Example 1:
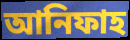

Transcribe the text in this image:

আনিফাহ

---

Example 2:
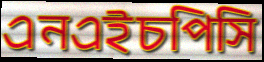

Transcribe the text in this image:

এনএইচপিসি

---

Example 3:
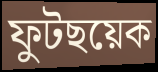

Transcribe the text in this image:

ফুটছয়েক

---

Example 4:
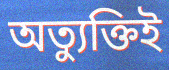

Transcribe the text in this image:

অত্যুক্তিই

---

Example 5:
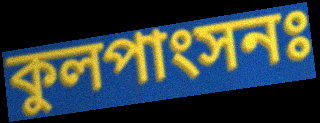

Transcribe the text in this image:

কুলপাংসনঃ